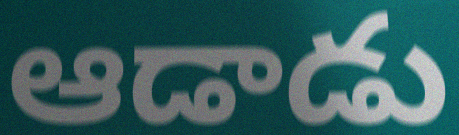
ఆడాడు